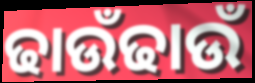
ଢାଉଁଢାଉଁ